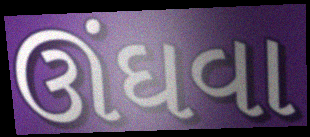
ઊંઘવા